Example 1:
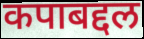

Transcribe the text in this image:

कपाबद्दल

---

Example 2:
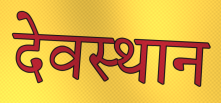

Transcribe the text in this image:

देवस्थान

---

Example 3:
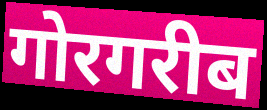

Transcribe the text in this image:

गोरगरीब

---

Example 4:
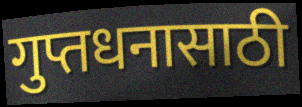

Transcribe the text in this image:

गुप्तधनासाठी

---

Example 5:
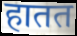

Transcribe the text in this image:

हातत